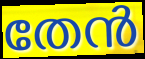
തേൻ